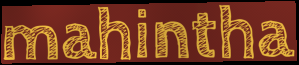
mahintha